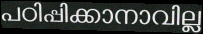
പഠിപ്പിക്കാനാവില്ല